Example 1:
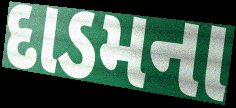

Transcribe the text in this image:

દાડમના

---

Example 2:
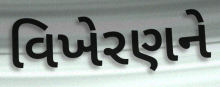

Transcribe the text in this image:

વિખેરણને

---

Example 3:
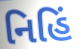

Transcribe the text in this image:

નિહિં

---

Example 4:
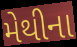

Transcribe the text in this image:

મેથીના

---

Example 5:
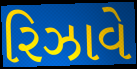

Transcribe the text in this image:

રિઝાવે